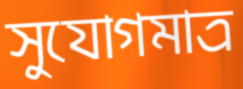
সুযোগমাত্র